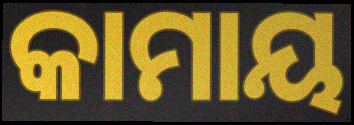
କାମାୟ